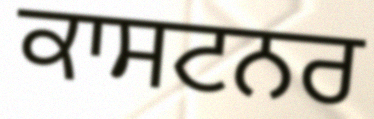
ਕਾਸਟਨਰ